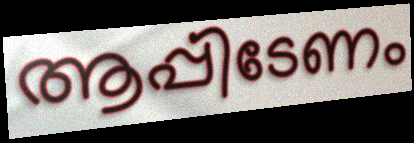
ആൎപ്പിടേണം